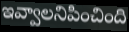
ఇవ్వాలనిపించింది